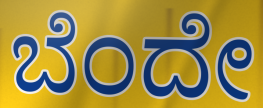
ಬೆಂದೇ